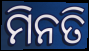
ମିନତି